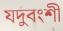
যদুবংশী